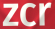
zcr